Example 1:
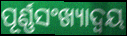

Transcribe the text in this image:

ପୂର୍ଣ୍ଣସଂଖ୍ୟାଦ୍ଵୟ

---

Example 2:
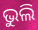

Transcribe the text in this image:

ଭୁଲି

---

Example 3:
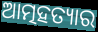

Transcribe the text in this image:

ଆତ୍ମହତ୍ୟାର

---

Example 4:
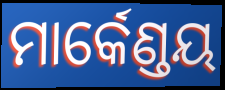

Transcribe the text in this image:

ମାର୍କେଣ୍ଡୟ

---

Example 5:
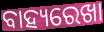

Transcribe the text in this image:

ବାହ୍ୟରେଖା